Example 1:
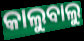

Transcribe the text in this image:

କାଲୁବାଲୁ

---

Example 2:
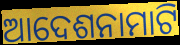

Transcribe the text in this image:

ଆଦେଶନାମାଟି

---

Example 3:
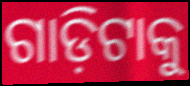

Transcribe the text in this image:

ଗାଡ଼ିଟାକୁ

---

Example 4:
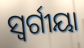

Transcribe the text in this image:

ସ୍ବର୍ଗୀୟା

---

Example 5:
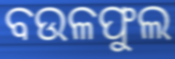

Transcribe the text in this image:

ବଉଳଫୁଲ